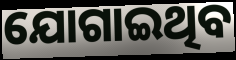
ଯୋଗାଇଥିବ